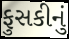
ફુસકીનું